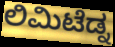
ಲಿಮಿಟೆಡ್ನ